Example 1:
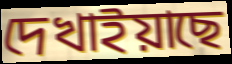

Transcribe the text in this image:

দেখাইয়াছে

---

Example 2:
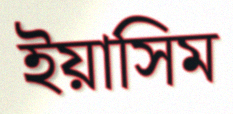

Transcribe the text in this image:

ইয়াসিম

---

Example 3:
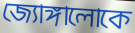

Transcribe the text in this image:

জ্যোঙ্গালোকে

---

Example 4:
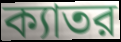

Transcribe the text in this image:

ক্যাতর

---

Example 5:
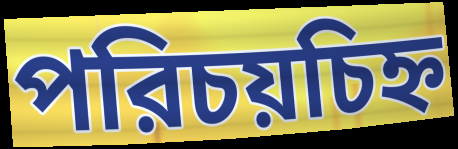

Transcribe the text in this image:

পরিচয়চিহ্ন